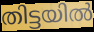
തിട്ടയിൽ